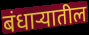
बंधाऱ्यातील